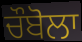
ਚੌਬੋਲਾ